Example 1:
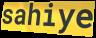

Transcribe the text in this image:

sahiye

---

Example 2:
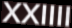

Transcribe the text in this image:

XXIIII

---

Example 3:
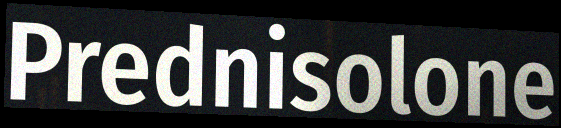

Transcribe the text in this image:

Prednisolone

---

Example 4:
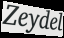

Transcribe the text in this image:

Zeydel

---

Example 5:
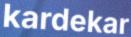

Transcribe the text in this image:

kardekar